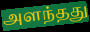
அளந்தது